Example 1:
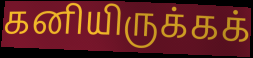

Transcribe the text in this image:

கனியிருக்கக்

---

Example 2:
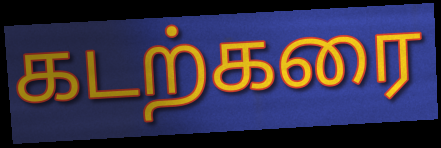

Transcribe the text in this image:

கடற்கரை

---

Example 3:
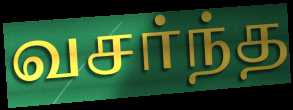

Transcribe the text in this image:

வசர்ந்த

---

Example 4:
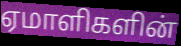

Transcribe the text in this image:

ஏமாளிகளின்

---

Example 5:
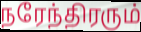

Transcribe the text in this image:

நரேந்திரரும்